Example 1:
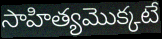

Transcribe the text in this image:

సాహిత్యమొక్కటే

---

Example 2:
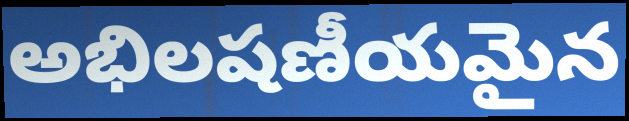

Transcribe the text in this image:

అభిలషణీయమైన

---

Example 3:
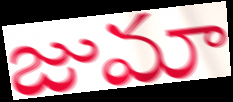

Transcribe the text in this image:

జుమా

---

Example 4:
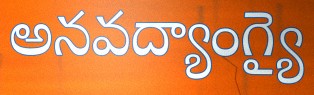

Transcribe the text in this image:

అనవద్యాంగ్యై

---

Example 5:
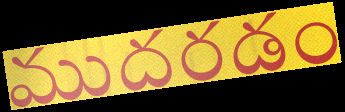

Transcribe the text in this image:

ముదరడం